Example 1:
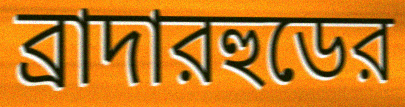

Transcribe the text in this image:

ব্রাদারহুডের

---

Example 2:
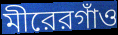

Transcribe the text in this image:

মীরেরগাঁও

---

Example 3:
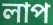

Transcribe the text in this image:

লাপ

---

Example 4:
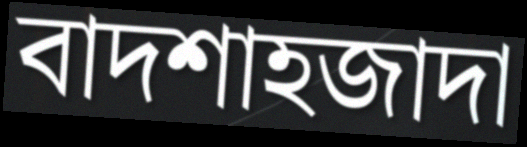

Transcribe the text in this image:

বাদশাহজাদা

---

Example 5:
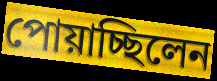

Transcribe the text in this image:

পোয়াচ্ছিলেন